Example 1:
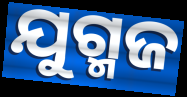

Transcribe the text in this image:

ଯୁଗ୍ମଜ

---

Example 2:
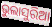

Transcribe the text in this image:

ଭୁଲାସୁରିଆ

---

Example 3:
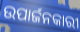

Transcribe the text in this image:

ଉପାର୍ଜନକାରୀ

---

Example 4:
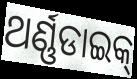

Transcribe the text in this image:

ଥର୍ଣ୍ଣଡାଇକ୍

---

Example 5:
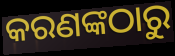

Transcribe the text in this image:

କରଣଙ୍କଠାରୁ